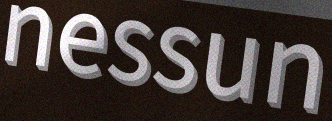
nessun